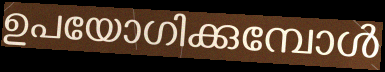
ഉപയോഗിക്കുമ്പോൾ